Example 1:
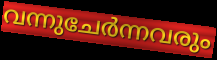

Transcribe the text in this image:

വന്നുചേർന്നവരും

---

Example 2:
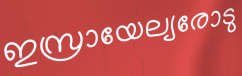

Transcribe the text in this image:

ഇസ്രായേല്യരോടു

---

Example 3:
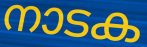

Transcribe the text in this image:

നാടക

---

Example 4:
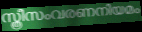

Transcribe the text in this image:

സ്ത്രീസംവരണനിയമം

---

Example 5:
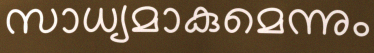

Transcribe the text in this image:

സാധ്യമാകുമെന്നും